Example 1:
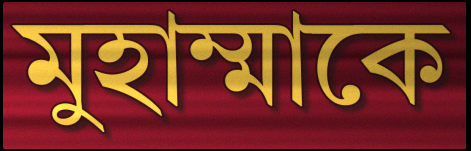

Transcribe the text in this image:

মুহাম্মাকে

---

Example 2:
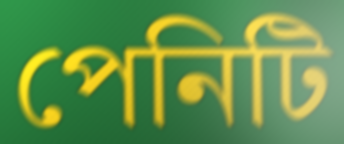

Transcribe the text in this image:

পেনিটি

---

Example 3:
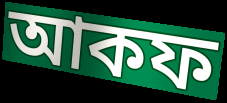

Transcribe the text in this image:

আকফ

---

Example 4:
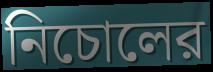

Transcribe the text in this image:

নিচোলের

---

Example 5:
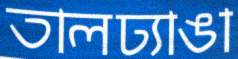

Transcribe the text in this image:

তালঢ্যাঙা